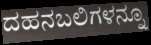
ದಹನಬಲಿಗಳನ್ನೂ